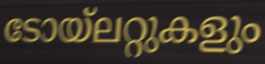
ടോയ്ലറ്റുകളും